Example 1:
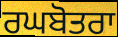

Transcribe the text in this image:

ਰਘਬੋਤਰਾ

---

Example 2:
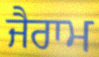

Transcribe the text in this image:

ਜੈਰਾਮ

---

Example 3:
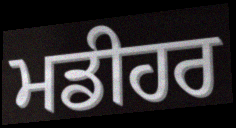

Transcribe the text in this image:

ਮਡੀਹਰ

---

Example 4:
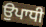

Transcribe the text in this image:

ਉਪਾਧੀ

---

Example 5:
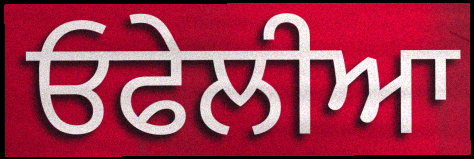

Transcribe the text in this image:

ਓਫੇਲੀਆ